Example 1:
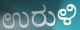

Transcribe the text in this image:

ಉರುಳಿ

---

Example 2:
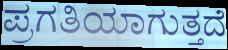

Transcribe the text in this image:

ಪ್ರಗತಿಯಾಗುತ್ತದೆ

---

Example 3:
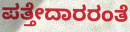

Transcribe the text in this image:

ಪತ್ತೇದಾರರಂತೆ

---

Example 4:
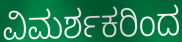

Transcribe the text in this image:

ವಿಮರ್ಶಕರಿಂದ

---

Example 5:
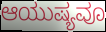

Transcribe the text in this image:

ಆಯುಷ್ಯವೂ